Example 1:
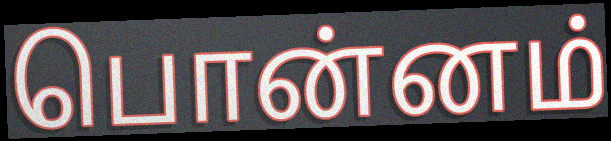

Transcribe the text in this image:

பொன்னம்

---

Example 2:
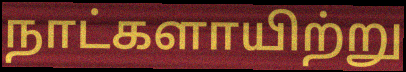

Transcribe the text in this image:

நாட்களாயிற்று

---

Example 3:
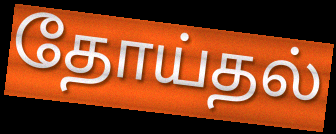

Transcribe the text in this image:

தோய்தல்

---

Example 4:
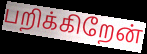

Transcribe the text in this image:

பறிக்கிறேன்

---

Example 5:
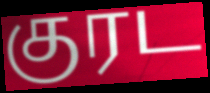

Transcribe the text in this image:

குரட